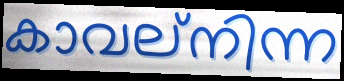
കാവല്നിന്ന